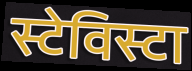
स्टेविस्टा